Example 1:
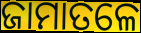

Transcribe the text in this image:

ଜାମାତଳେ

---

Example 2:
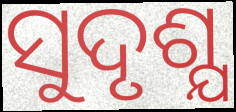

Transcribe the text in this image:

ସୁଦୃଶ୍ଯ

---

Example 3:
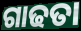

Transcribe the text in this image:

ଗାଢତା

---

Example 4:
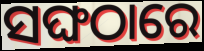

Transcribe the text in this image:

ସଙ୍ଘଠାରେ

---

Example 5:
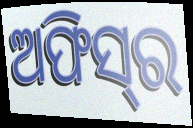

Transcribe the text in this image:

ଅଫିସ୍‌ର